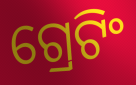
ଗ୍ରେଟିଂ